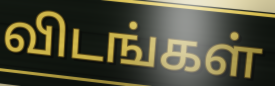
விடங்கள்